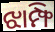
ଝାମ୍ଫି